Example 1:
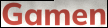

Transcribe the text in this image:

Gamen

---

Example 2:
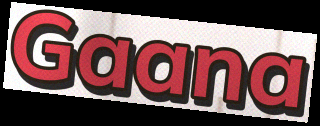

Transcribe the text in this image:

Gaana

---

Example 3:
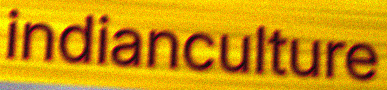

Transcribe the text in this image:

indianculture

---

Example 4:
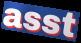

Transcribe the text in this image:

asst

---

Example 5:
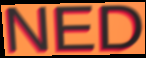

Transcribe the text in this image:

NED